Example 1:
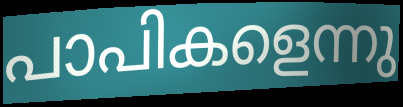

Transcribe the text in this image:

പാപികളെന്നു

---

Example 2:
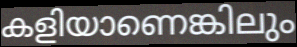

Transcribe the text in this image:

കളിയാണെങ്കിലും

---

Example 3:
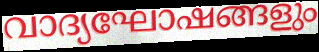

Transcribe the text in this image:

വാദ്യഘോഷങ്ങളും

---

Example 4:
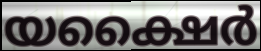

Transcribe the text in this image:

യക്ഷൈർ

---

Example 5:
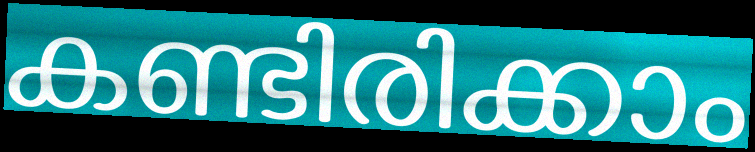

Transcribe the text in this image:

കണ്ടിരിക്കാം